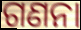
ଗଣନା